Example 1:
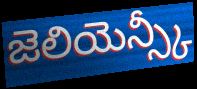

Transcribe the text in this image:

జెలియెన్స్కీ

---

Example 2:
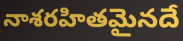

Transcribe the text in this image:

నాశరహితమైనదే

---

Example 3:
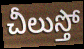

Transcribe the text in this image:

చీలుస్తో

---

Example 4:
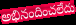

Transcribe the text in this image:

అభినందించలేదు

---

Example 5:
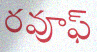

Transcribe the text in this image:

రవూఫ్